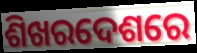
ଶିଖରଦେଶରେ